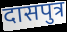
दासपुत्र